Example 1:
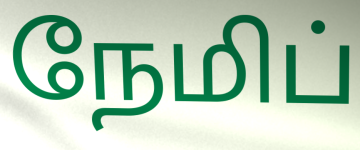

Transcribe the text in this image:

நேமிப்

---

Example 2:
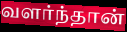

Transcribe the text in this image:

வளர்ந்தான்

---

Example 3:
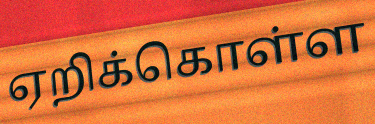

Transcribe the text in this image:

ஏறிக்கொள்ள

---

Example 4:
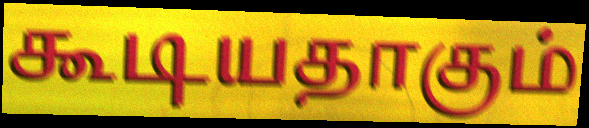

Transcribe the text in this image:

கூடியதாகும்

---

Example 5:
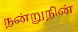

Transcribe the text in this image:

நன்றுநின்